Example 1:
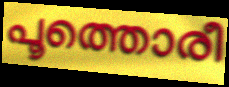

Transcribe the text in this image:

പൂത്തൊരീ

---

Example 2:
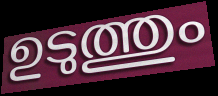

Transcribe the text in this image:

ഉടുത്തും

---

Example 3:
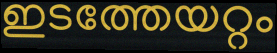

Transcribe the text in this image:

ഇടത്തേയറ്റം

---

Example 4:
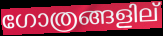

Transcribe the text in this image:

ഗോത്രങ്ങളില്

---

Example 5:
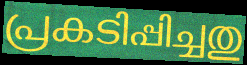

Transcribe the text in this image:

പ്രകടിപ്പിച്ചതു